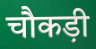
चौकड़ी